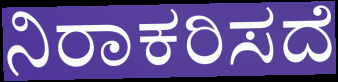
ನಿರಾಕರಿಸದೆ